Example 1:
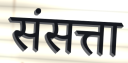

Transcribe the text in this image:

संसत्ता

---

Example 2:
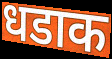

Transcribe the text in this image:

धडाक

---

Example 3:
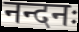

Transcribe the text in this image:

नन्दनः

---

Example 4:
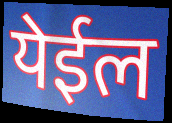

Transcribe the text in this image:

येईल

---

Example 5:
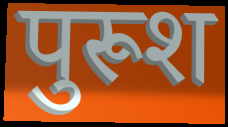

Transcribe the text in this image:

पुरूश